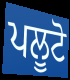
ਪਲੂਟੋ